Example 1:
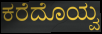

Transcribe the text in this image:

ಕರೆದೊಯ್ವ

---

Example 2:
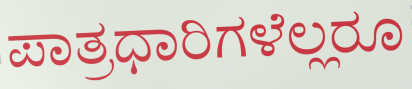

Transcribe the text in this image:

ಪಾತ್ರಧಾರಿಗಳೆಲ್ಲರೂ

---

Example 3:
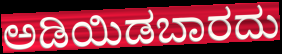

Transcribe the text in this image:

ಅಡಿಯಿಡಬಾರದು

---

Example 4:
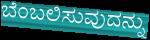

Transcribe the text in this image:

ಬೆಂಬಲಿಸುವುದನ್ನು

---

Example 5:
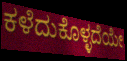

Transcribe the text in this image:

ಕಳೆದುಕೊಳ್ಳದೆಯೇ